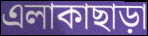
এলাকাছাড়া